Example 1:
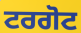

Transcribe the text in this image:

ਟਰਗੋਟ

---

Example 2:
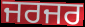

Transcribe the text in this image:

ਜਰਜਰ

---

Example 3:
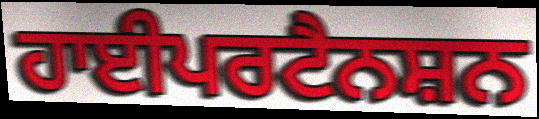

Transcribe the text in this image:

ਹਾਈਪਰਟੈਨਸ਼ਨ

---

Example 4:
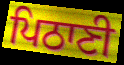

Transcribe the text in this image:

ਪਿਠਾਣੀ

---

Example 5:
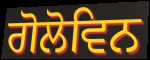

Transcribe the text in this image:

ਗੋਲੋਵਿਨ